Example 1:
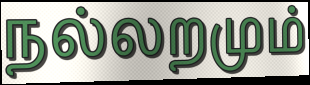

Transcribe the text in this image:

நல்லறமும்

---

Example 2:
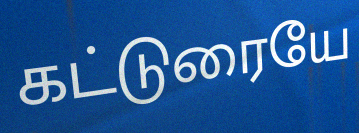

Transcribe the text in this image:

கட்டுரையே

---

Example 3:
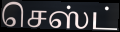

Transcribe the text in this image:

செஸ்ட்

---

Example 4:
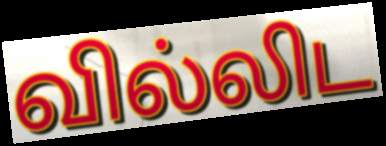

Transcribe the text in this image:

வில்லிட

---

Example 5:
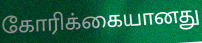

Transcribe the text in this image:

கோரிக்கையானது